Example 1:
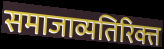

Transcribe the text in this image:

समाजाव्यतिरिक्त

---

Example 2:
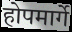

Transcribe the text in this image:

होपमार्गे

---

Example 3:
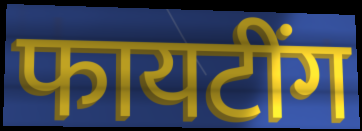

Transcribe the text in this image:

फायटींग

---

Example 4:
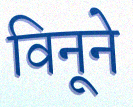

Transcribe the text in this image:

विनूने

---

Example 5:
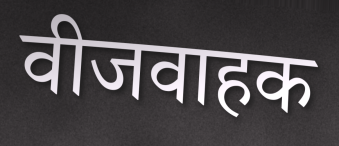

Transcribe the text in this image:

वीजवाहक